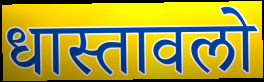
धास्तावलो